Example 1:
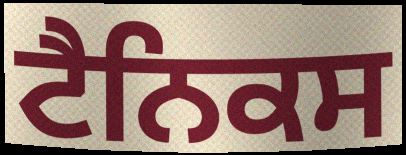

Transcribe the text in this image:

ਟੈਨਿਕਸ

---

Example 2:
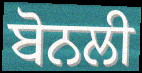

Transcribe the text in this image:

ਬੋਨਲੀ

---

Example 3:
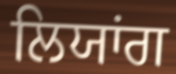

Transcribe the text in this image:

ਲਿਯਾਂਗ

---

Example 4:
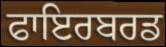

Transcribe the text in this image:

ਫਾਇਰਬਰਡ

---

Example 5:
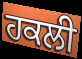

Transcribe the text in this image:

ਹਕਲੀ